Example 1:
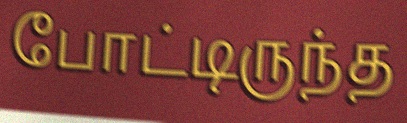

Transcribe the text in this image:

போட்டிருந்த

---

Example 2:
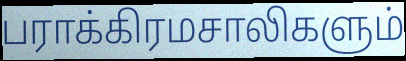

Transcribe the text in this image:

பராக்கிரமசாலிகளும்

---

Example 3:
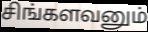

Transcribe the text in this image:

சிங்களவனும்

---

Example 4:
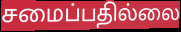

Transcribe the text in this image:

சமைப்பதில்லை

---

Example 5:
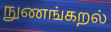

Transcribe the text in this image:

நுணங்கறல்